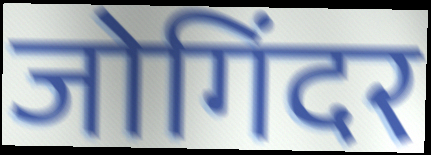
जोगिंदर